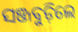
ସଞ୍ଜବୁଡ଼ିଲେ